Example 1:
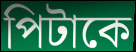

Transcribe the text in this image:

পিটাকে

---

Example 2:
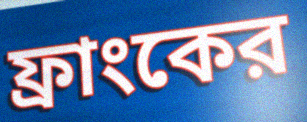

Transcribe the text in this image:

ফ্রাংকের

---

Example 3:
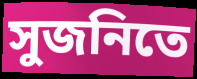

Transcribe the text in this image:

সুজনিতে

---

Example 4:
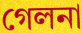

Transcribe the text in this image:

গেলনা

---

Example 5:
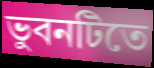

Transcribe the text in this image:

ভুবনটিতে